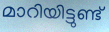
മാറിയിട്ടുണ്ട്